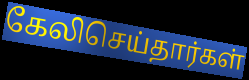
கேலிசெய்தார்கள்